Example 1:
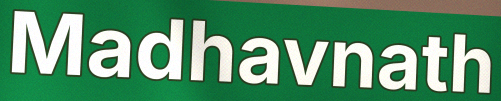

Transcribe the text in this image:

Madhavnath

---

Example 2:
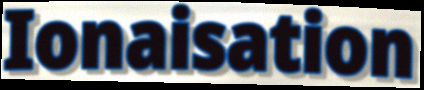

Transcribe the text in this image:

Ionaisation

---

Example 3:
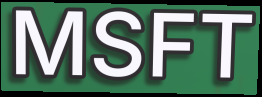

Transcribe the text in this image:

MSFT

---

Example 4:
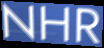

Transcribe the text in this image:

NHR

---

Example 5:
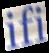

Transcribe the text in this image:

ifi